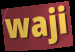
waji